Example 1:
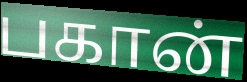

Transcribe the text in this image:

பகான்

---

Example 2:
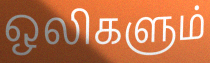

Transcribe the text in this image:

ஒலிகளும்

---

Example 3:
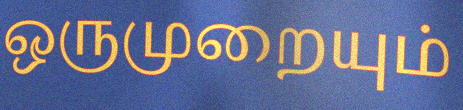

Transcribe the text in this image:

ஒருமுறையும்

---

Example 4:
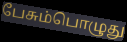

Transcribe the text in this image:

பேசும்பொழுது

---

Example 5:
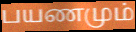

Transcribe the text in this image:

பயணமும்